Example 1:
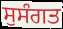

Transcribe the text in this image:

ਸੁਸੰਗਤ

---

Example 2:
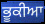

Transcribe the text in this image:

ਭੂਕੀਆ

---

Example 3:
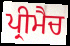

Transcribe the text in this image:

ਪ੍ਰੀਮੈਚ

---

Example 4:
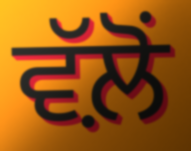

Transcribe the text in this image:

ਵੱਲ਼ੋਂ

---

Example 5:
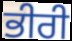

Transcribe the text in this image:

ਭੀਰੀ